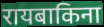
रायबाकिना